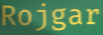
Rojgar